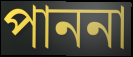
পাননা